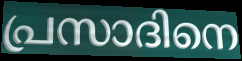
പ്രസാദിനെ